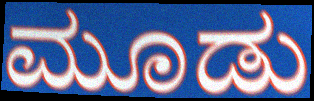
ಮೂಡು